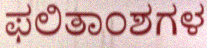
ಫಲಿತಾಂಶಗಳ